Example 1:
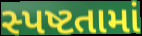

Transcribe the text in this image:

સ્પષ્ટતામાં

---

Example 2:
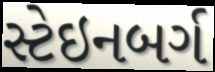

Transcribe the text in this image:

સ્ટેઇનબર્ગ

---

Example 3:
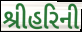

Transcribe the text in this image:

શ્રીહરિની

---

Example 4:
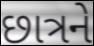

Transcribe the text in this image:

છાત્રને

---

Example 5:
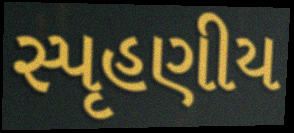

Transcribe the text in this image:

સ્પૃહણીય